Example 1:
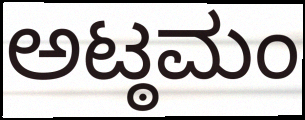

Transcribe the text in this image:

ಅಟ್ಠಮಂ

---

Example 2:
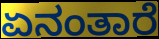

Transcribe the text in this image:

ಏನಂತಾರೆ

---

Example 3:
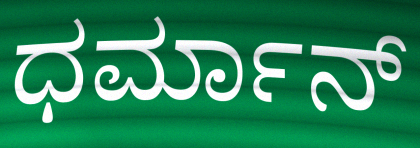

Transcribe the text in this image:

ಧರ್ಮಾನ್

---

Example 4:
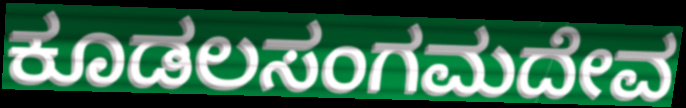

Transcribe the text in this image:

ಕೂಡಲಸಂಗಮದೇವ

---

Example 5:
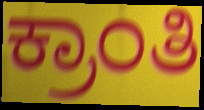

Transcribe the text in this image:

ಕ್ರಾಂತಿ